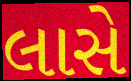
લાસે